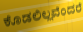
ಕೊಡಲಿಲ್ಲವೆಂದರೆ